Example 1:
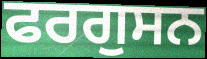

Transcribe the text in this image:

ਫਰਗੁਸਨ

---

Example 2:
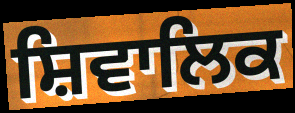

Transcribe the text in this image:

ਸ਼ਿਵਾਲਿਕ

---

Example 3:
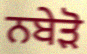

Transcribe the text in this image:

ਨਬੇੜੋ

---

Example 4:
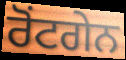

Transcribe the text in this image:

ਰੋਂਟਗੇਨ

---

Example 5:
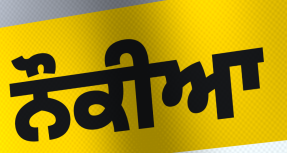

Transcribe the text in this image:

ਨੌਕੀਆ